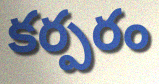
కర్పరం